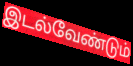
இடல்வேண்டும்